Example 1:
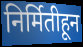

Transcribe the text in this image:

निर्मितीहून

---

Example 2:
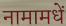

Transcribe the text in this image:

नामामधें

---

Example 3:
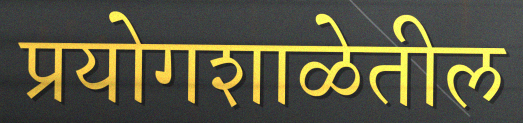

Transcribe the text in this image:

प्रयोगशाळेतील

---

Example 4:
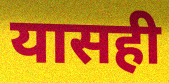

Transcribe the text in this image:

यासही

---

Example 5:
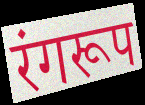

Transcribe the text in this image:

रंगरूप